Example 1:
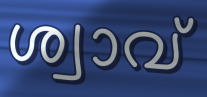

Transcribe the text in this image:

ശ്വാവ്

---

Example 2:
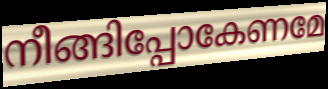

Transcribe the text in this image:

നീങ്ങിപ്പോകേണമേ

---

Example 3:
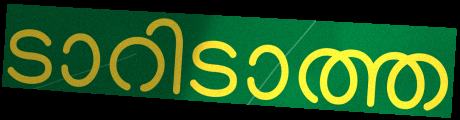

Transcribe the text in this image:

ടാറിടാത്ത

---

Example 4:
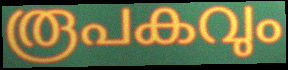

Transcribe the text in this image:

രൂപകവും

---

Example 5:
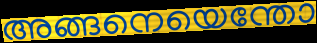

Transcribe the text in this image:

അങ്ങനെയെന്തോ